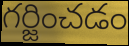
గర్జించడం